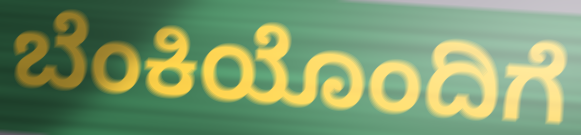
ಬೆಂಕಿಯೊಂದಿಗೆ